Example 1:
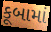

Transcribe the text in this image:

કૂબામાં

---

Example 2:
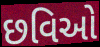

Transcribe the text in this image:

છવિઓ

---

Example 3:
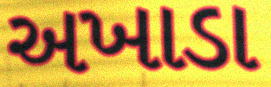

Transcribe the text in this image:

અખાડા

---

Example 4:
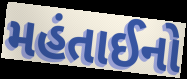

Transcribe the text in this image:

મહંતાઈનો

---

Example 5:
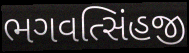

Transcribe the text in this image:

ભગવત્સિંહજી